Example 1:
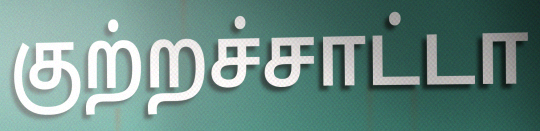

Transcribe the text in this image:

குற்றச்சாட்டா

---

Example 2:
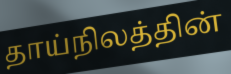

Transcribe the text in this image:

தாய்நிலத்தின்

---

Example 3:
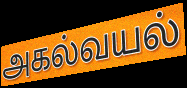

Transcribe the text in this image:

அகல்வயல்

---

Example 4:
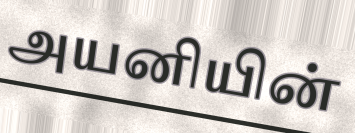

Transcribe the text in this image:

அயனியின்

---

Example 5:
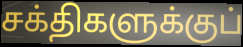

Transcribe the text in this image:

சக்திகளுக்குப்